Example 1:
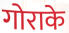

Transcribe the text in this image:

गोराके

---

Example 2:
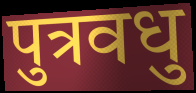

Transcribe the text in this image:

पुत्रवधु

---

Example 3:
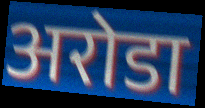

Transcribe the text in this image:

अरोडा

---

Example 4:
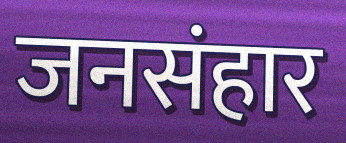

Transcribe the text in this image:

जनसंहार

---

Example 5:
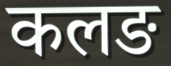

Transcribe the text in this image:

कलङ